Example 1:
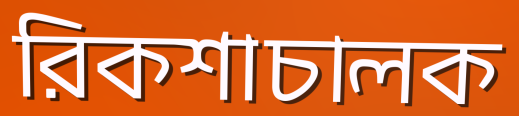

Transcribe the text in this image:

রিকশাচালক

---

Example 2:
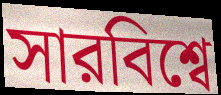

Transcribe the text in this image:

সারবিশ্বে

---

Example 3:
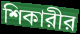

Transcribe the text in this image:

শিকারীর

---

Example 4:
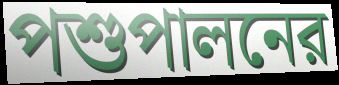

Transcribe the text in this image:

পশুপালনের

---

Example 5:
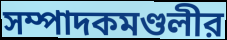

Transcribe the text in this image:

সম্পাদকমণ্ডলীর